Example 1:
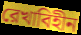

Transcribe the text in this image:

রেখাবিহীন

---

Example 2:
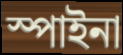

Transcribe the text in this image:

স্পাইনা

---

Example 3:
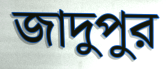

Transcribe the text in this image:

জাদুপুর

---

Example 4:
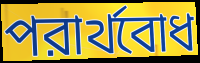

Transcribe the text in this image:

পরার্থবোধ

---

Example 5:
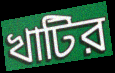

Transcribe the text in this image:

খাটির